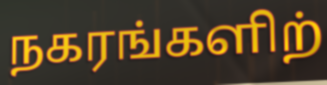
நகரங்களிற்